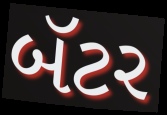
બૅટર